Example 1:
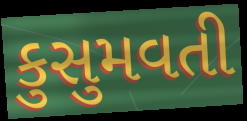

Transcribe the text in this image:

કુસુમવતી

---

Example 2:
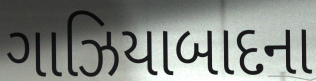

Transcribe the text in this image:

ગાઝિયાબાદના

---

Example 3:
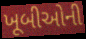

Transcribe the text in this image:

ખૂબીઓની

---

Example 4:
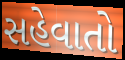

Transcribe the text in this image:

સહેવાતો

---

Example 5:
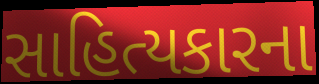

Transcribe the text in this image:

સાહિત્યકારના